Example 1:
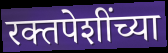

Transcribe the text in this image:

रक्तपेशींच्या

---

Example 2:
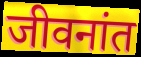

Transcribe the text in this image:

जीवनांत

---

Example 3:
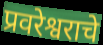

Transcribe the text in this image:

प्रवरेश्वराचे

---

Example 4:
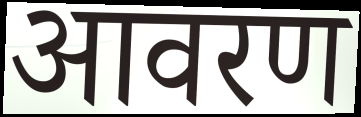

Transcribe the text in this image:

आवरण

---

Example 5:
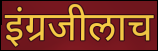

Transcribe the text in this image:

इंग्रजीलाच